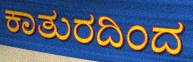
ಕಾತುರದಿಂದ